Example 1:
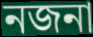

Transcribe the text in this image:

নজনা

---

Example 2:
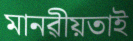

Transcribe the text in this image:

মানৱীয়তাই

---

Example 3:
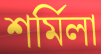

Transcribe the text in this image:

শৰ্মিলা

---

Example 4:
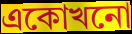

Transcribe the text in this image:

একোখনো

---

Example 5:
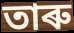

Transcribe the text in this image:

তাৰু